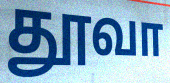
தூவா